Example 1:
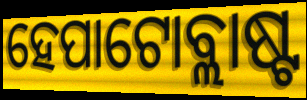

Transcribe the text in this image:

ହେପାଟୋବ୍ଲାଷ୍ଟ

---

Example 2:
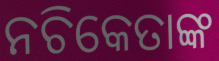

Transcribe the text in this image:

ନଚିକେତାଙ୍କ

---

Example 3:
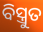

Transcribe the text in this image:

ବିସ୍ତ୍ରୁତ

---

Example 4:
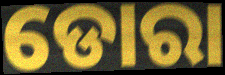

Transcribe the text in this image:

ଡୋରା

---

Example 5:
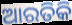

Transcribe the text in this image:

ଆରତିକି